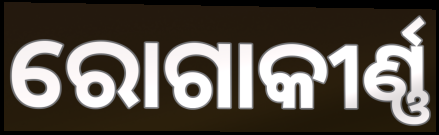
ରୋଗାକୀର୍ଣ୍ଣ